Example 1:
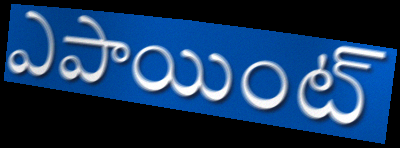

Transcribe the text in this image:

ఎపాయింట్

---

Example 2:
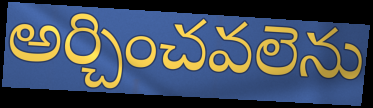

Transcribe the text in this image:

అర్చించవలెను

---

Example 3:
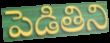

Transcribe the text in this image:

పెడితిని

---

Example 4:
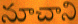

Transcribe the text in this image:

నూచాని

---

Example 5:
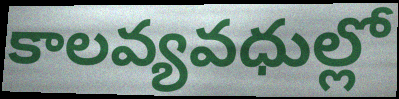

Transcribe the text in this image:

కాలవ్యవధుల్లో